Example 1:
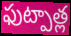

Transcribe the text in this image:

ఫుట్పాత్ల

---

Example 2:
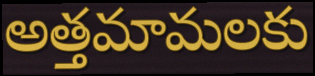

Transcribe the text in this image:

అత్తమామలకు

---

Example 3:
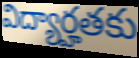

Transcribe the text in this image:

విద్యార్హతకు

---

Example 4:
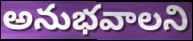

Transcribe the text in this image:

అనుభవాలని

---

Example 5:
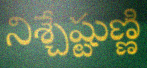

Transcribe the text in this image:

నిశ్చేష్టుణ్ణి